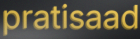
pratisaad